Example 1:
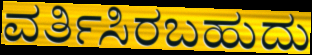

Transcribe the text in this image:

ವರ್ತಿಸಿರಬಹುದು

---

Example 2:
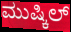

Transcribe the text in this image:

ಮುಷ್ಕಿಲ್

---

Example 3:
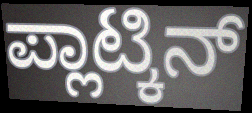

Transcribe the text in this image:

ಪ್ಲಾಟ್ಕಿನ್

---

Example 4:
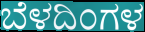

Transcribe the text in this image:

ಬೆಳದಿಂಗಳ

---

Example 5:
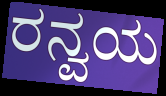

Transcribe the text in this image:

ರನ್ವಯ